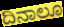
ದಿನಾಲೂ